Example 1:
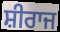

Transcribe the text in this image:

ਸ਼ੀਰਾਜ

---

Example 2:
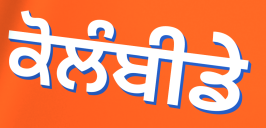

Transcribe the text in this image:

ਕੋਲੰਬੀਡੇ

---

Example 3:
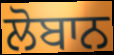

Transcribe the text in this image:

ਲੋਬਾਨ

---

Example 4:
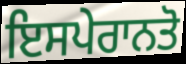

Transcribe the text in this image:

ਇਸਪੇਰਾਨਤੋ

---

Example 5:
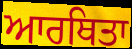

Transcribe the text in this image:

ਆਰਥਿਤਾ